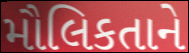
મૌલિકતાને